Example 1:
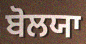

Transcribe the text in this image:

ਬੋਲਯਾ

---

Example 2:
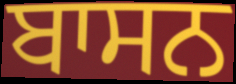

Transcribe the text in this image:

ਬਾਸਨ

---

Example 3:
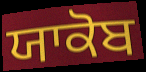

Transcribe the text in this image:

ਯਾਕੋਬ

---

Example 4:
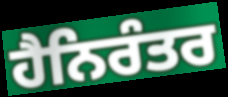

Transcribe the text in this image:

ਹੈਨਿਰੰਤਰ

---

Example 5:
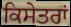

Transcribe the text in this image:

ਕਿਸੇਤਰਾਂ